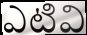
ఎటివి